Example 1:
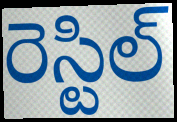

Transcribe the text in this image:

రెస్టిల్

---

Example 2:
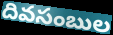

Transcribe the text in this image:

దివసంబుల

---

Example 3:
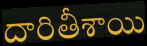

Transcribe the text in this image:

దారితీశాయి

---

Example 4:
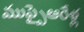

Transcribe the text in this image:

ముప్పైఆరేళ్ల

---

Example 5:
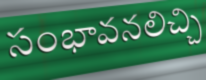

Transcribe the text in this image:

సంభావనలిచ్చి